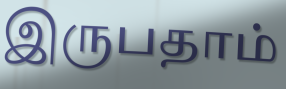
இருபதாம்